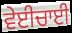
ਵੇਈਚਾਈ